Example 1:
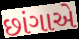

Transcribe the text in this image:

છાંગાએ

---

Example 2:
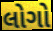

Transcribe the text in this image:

લોગો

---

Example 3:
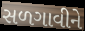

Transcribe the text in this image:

સળગાવીને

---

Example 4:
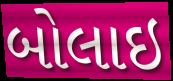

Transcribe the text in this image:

બોલાઇ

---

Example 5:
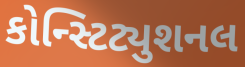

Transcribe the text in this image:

કોન્સ્ટિટ્યુશનલ